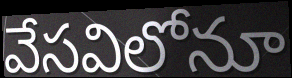
వేసవిలోనూ